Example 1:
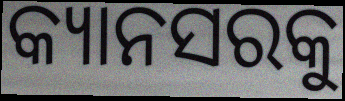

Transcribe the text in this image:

କ୍ୟାନସରକୁ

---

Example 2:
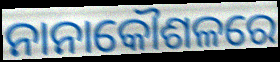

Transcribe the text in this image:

ନାନାକୌଶଳରେ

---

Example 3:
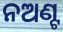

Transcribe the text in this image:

ନଅଣ୍ଟ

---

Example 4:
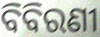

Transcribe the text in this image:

ବିବିରଣୀ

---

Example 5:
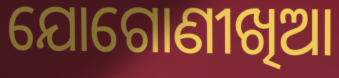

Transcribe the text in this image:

ଯୋଗୋଣୀଖିଆ